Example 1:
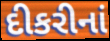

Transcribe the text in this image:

દીકરીનાં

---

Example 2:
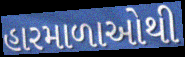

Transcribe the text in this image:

હારમાળાઓથી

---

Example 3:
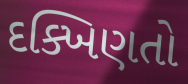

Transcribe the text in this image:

દક્ખિણતો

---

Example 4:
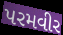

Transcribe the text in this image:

પરમવીર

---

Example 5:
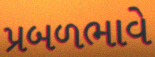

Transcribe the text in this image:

પ્રબળભાવે